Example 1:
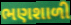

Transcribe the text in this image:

ભણશાળી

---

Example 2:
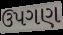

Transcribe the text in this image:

ઉપગણ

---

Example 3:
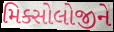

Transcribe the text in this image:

મિક્સોલોજીને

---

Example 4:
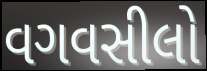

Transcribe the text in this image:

વગવસીલો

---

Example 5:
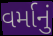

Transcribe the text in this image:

વર્માનું